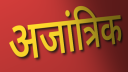
अजांत्रिक